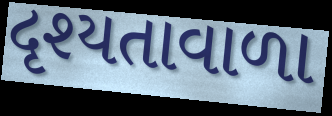
દૃશ્યતાવાળા